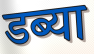
डब्या